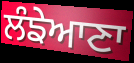
ਲੰਙੇਆਣਾ